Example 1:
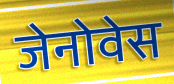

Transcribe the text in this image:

जेनोवेस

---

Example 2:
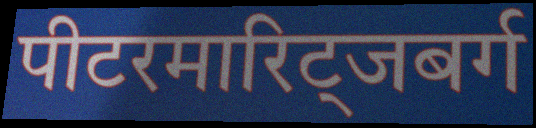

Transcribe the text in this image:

पीटरमारिट्जबर्ग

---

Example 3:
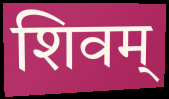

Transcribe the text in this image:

शिवम्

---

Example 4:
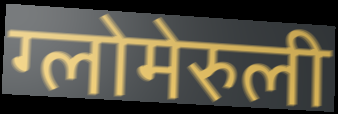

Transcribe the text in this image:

ग्लोमेरुली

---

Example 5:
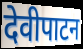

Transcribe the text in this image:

देवीपाटन